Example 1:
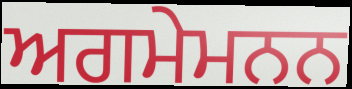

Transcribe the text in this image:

ਅਗਮੇਮਨਨ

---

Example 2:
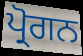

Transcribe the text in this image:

ਪ੍ਰੋਗਨ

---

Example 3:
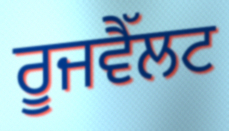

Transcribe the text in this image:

ਰੂਜਵੈੱਲਟ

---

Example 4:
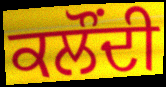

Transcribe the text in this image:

ਕਲੌਂਦੀ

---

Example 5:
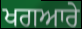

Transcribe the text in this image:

ਖਗਆਰੇ